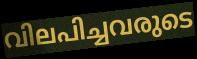
വിലപിച്ചവരുടെ